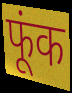
फूंक